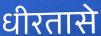
धीरतासे